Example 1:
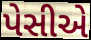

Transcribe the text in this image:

પેસીએ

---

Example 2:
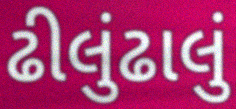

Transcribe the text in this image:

ઢીલુંઢાલું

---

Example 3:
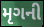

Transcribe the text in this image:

મૃગની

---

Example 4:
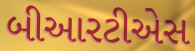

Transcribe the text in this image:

બીઆરટીએસ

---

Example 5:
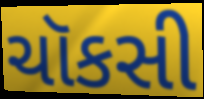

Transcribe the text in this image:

ચૉકસી